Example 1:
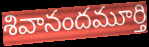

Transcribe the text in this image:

శివానందమూర్తి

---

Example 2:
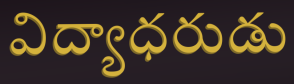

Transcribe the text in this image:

విద్యాధరుడు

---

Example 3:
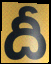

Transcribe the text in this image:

దీ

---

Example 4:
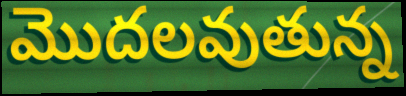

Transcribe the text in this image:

మొదలవుతున్న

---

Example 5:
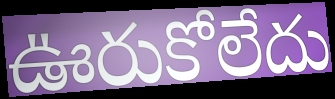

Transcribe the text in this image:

ఊరుకోలేదు